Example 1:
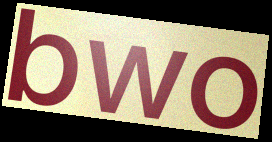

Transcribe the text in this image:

bwo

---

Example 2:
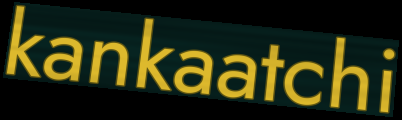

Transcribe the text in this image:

kankaatchi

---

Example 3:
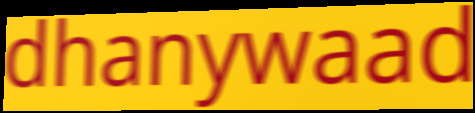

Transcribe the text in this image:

dhanywaad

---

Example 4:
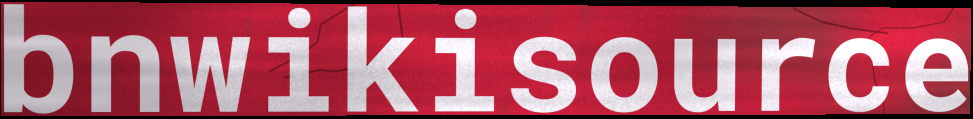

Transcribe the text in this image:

bnwikisource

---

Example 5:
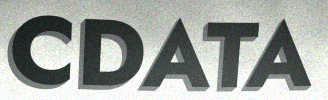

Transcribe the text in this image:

CDATA